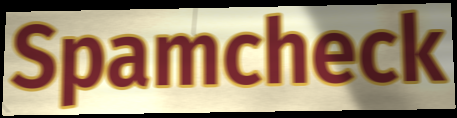
Spamcheck